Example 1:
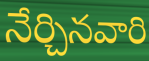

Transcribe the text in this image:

నేర్చినవారి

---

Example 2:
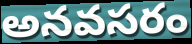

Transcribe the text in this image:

అనవసరం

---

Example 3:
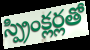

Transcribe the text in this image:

స్ప్రింక్లర్లతో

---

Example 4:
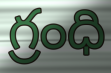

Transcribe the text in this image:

గ్రంధి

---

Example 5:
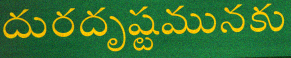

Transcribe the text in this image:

దురదృష్టమునకు